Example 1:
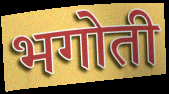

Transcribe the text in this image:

भगोती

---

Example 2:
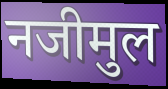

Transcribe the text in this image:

नजीमुल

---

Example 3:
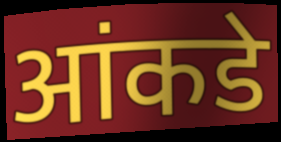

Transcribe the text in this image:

आंकडे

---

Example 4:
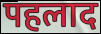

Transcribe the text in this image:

पहलाद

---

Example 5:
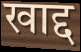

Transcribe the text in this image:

खाद्द